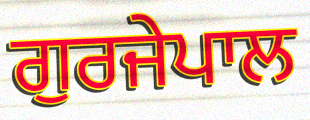
ਗੁਰਜੇਪਾਲ